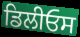
ਡਿਲੀਓਸ